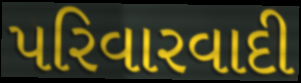
પરિવારવાદી